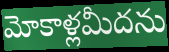
మోకాళ్లమీదను